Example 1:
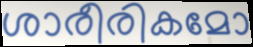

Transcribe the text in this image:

ശാരീരികമോ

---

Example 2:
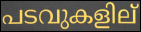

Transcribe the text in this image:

പടവുകളില്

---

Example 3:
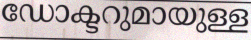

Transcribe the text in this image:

ഡോക്ടറുമായുള്ള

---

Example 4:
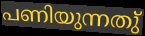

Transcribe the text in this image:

പണിയുന്നതു്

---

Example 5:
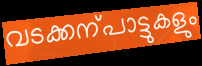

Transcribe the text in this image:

വടക്കന്പാട്ടുകളും